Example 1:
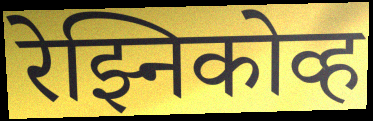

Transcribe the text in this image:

रेझ्निकोव्ह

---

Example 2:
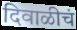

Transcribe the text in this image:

दिवाळीचं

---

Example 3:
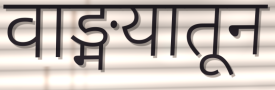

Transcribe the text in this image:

वाङ्मयातून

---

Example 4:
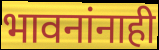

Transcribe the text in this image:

भावनांनाही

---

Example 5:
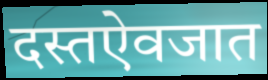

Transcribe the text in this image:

दस्तऐवजात